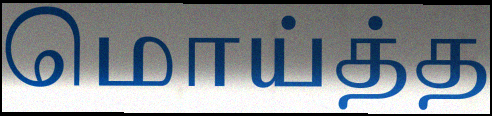
மொய்த்த